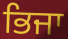
ਭਿਜਾ